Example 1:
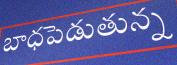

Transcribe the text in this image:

బాధపెడుతున్న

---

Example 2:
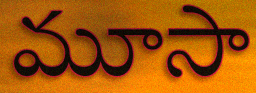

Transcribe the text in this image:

మూసా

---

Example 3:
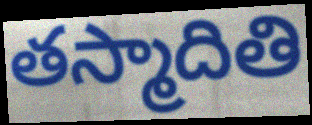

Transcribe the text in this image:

తస్మాదితి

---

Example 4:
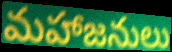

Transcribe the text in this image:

మహాజనులు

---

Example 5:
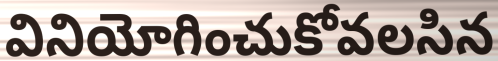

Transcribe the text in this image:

వినియోగించుకోవలసిన